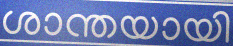
ശാന്തയായി